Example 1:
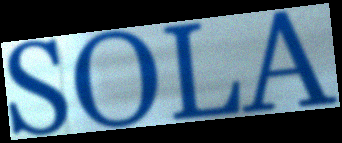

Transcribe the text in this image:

SOLA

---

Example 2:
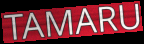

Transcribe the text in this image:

TAMARU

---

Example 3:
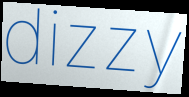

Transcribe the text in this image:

dizzy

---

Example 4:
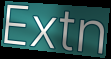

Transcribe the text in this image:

Extn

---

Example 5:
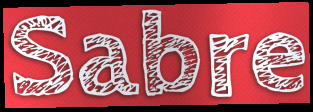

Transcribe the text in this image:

Sabre